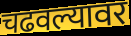
चढवल्यावर